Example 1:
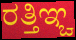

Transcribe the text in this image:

ರತ್ತಿಞ್ಚ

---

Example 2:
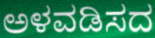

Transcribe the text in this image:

ಅಳವಡಿಸದ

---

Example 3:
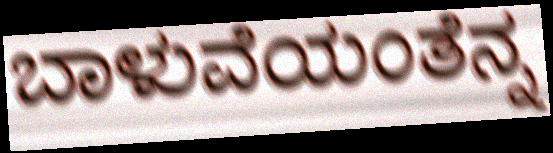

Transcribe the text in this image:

ಬಾಳುವೆಯಂತೆನ್ನ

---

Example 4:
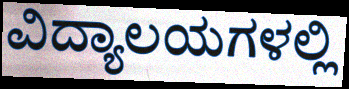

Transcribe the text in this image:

ವಿದ್ಯಾಲಯಗಳಲ್ಲಿ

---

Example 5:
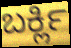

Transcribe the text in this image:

ಬರ್ಕ್ಲಿ